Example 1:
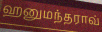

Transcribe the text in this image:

ஹனுமந்தராவ்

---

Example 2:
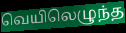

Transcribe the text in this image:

வெயிலெழுந்த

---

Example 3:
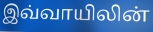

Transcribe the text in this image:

இவ்வாயிலின்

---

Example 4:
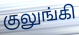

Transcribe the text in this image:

குலுங்கி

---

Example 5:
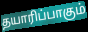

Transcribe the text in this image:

தயாரிப்பாகும்